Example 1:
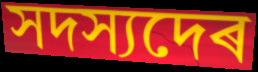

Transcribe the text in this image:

সদস্যদেৰ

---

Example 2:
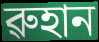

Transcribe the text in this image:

ৱুহান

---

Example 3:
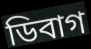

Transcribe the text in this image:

ডিবাগ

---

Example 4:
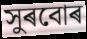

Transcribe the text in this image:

সুৰবোৰ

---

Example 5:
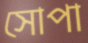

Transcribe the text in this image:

সোপা